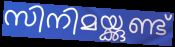
സിനിമയ്ക്കുണ്ട്